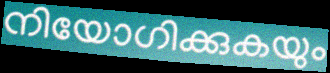
നിയോഗിക്കുകയും